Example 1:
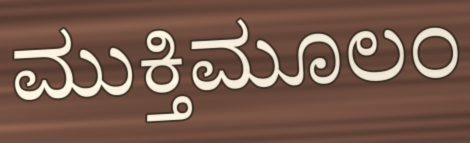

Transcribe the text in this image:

ಮುಕ್ತಿಮೂಲಂ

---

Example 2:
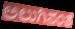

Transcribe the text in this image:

ಅಲುಗಿನಂತೆ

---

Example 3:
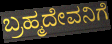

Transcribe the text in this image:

ಬ್ರಹ್ಮದೇವನಿಗೆ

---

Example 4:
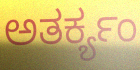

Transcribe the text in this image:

ಅತರ್ಕ್ಯಂ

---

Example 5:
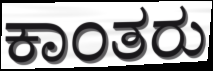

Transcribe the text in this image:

ಕಾಂತರು